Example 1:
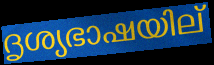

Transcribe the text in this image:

ദൃശ്യഭാഷയില്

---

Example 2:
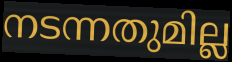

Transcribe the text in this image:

നടന്നതുമില്ല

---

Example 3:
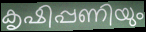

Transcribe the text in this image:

കൃഷിപ്പണിയും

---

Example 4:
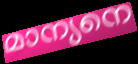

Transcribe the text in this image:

മാന്യനെ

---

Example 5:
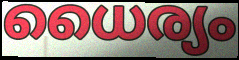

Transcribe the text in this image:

ധൈര്യം